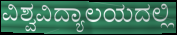
ವಿಶ್ವವಿದ್ಯಾಲಯದಲ್ಲಿ